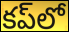
కప్‌లో